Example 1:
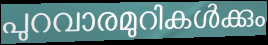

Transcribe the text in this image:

പുറവാരമുറികൾക്കും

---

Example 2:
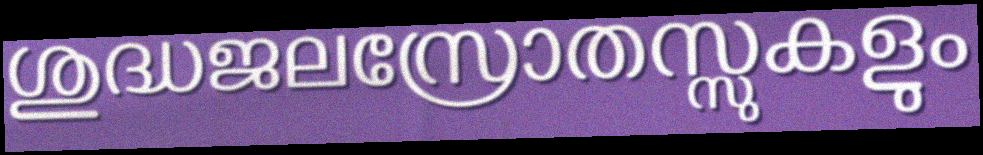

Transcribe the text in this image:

ശുദ്ധജലസ്രോതസ്സുകളും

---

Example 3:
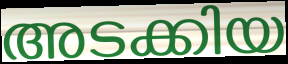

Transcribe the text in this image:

അടക്കിയ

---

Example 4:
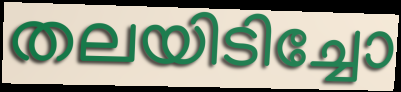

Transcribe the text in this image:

തലയിടിച്ചോ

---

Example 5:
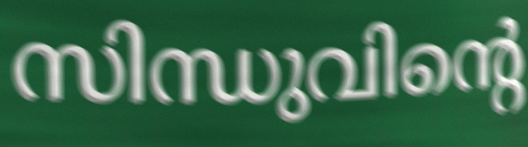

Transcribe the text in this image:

സിന്ധുവിന്റെ